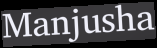
Manjusha